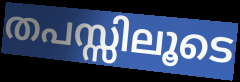
തപസ്സിലൂടെ